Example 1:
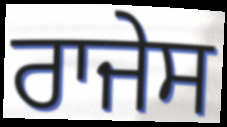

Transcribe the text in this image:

ਰਾਜੇਸ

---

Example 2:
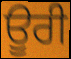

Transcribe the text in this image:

ਊਰੀ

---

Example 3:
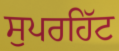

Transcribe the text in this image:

ਸੁਪਰਹਿੱਟ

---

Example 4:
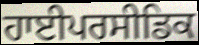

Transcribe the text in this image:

ਹਾਈਪਰਸੀਡਿਕ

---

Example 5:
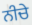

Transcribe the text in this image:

ਨੀਚੇ